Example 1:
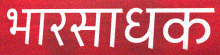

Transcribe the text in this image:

भारसाधक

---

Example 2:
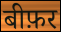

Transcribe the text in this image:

बीफ़र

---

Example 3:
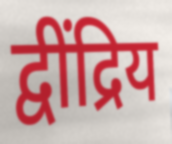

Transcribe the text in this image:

द्वींद्रिय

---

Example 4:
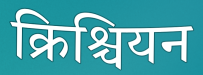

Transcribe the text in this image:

क्रिश्चियन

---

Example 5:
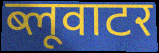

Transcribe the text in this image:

ब्लूवाटर